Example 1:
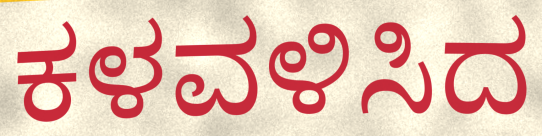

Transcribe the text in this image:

ಕಳವಳಿಸಿದ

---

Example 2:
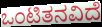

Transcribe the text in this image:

ಒಂಟಿತನವಿದೆ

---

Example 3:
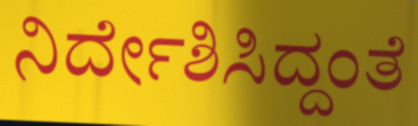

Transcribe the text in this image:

ನಿರ್ದೇಶಿಸಿದ್ದಂತೆ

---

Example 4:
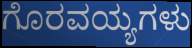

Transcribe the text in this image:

ಗೊರವಯ್ಯಗಳು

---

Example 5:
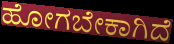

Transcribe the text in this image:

ಹೋಗಬೇಕಾಗಿದೆ